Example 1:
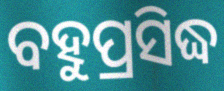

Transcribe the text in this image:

ବହୁପ୍ରସିଦ୍ଧ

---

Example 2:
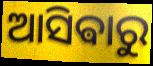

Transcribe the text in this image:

ଆସିଵାରୁ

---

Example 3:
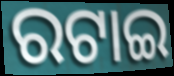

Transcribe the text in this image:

ରଟାଇ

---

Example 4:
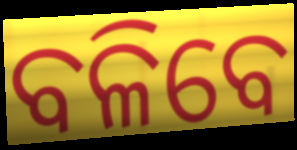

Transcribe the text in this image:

ବଳିବେ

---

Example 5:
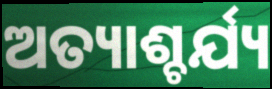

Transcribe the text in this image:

ଅତ୍ୟାଶ୍ଚର୍ଯ୍ୟ